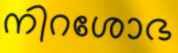
നിറശോഭ